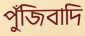
পুঁজিবাদি